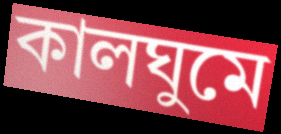
কালঘুমে